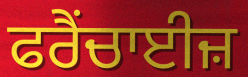
ਫਰੈਂਚਾਈਜ਼